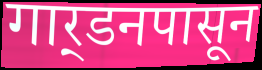
गार्डनपासून